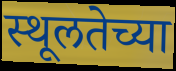
स्थूलतेच्या